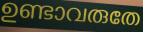
ഉണ്ടാവരുതേ